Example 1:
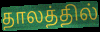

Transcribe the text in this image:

தாலத்தில்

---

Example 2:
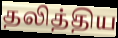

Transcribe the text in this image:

தலித்திய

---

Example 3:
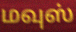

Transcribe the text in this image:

மவுஸ்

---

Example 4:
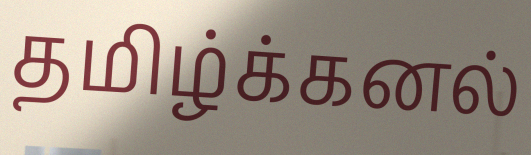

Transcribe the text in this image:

தமிழ்க்கனல்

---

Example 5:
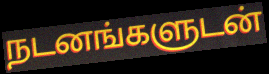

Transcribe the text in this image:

நடனங்களுடன்